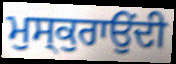
ਮੁਸ੍ਕੁਰਾਉਂਦੀ